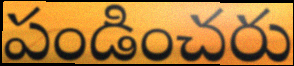
పండించరు